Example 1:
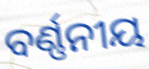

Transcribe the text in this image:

ବର୍ଣ୍ଣନୀୟ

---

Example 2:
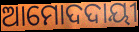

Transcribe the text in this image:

ଆମୋଦଦାୟୀ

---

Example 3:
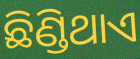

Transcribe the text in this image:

ଛିଣ୍ଡିଥାଏ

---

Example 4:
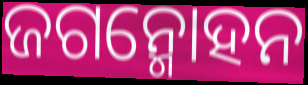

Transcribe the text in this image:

ଜଗନ୍ମୋହନ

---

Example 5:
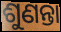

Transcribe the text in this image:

ଶୁଣନ୍ତା